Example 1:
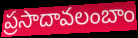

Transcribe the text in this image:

ప్రసాదావలంబాం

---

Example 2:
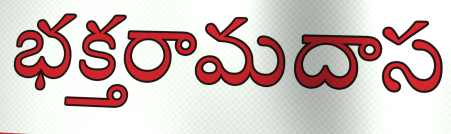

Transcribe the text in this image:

భక్తరామదాస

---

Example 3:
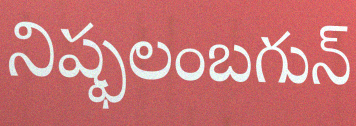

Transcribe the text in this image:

నిష్ఫలంబగున్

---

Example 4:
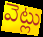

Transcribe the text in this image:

వెట్లు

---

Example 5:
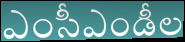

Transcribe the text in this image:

ఎంసీఎండీల